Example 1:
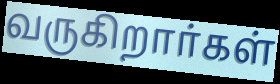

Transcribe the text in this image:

வருகிறார்கள்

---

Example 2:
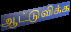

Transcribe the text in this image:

ஆட்டுவிக்க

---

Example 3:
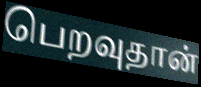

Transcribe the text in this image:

பெறவுதான்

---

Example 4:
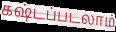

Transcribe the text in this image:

கஷ்டப்படலாம்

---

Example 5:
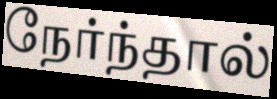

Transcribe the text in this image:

நேர்ந்தால்